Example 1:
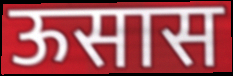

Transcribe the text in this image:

ऊसास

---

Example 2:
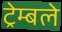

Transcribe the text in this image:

ट्रेम्बले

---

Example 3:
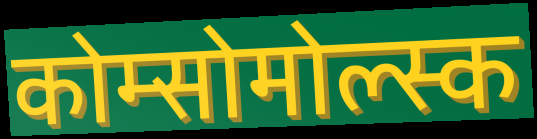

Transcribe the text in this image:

कोम्सोमोल्स्क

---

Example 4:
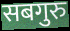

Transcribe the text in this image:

सबगुरु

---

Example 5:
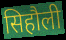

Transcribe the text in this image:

सिहौली